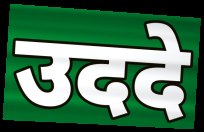
उददे